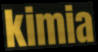
kimia